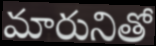
మారునితో